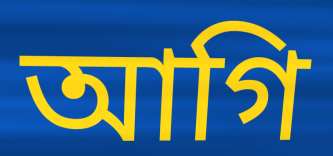
আগি